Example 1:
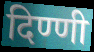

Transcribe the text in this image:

दिण्णी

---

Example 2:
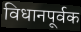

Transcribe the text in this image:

विधानपूर्वक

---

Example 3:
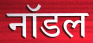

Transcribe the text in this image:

नॉडल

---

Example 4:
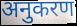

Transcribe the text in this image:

अनुकरण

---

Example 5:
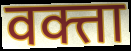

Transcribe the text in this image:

वक्ता